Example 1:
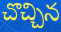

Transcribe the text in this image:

చొచ్చిన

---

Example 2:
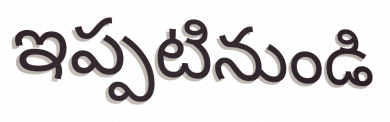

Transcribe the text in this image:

ఇప్పటినుండి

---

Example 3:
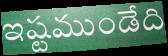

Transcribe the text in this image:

ఇష్టముండేది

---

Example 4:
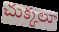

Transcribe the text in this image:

చుక్కలూ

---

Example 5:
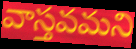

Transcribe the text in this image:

వాస్తవమని